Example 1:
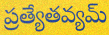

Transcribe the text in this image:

ప్రత్యేతవ్యమ్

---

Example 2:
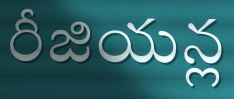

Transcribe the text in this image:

రీజియన్ల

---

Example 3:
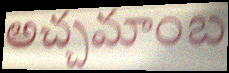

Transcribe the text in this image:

అచ్చమాంబ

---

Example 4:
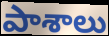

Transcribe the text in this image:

పాశాలు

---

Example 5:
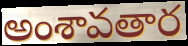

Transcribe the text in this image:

అంశావతార